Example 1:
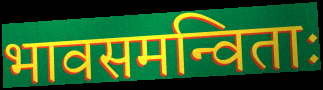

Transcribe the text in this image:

भावसमन्विताः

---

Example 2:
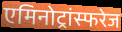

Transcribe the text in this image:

एमिनोट्रांस्फरेज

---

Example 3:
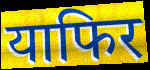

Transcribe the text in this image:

याफिर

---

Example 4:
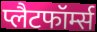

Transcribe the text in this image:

प्लैटफॉर्म्स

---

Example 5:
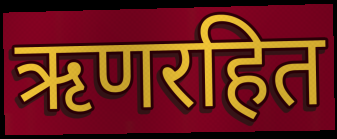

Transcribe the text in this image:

ऋणरहित